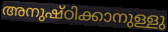
അനുഷ്ഠിക്കാനുള്ളു